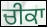
ਚੀਕਾ